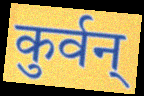
कुर्वन्